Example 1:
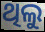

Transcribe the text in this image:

ଥିଲୁ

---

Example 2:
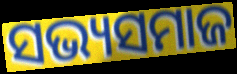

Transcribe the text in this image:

ସଭ୍ୟସମାଜ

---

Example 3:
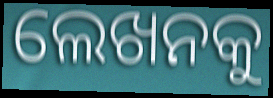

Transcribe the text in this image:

ଲେଖନକୁ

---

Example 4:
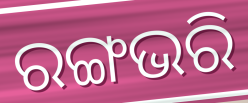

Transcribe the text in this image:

ରଙ୍ଗଭରି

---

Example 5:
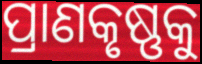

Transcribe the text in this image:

ପ୍ରାଣକୃଷ୍ଣକୁ